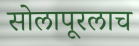
सोलापूरलाच